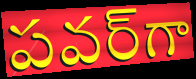
పవర్‌గా